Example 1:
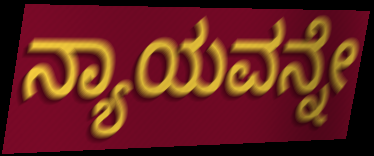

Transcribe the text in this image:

ನ್ಯಾಯವನ್ನೇ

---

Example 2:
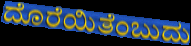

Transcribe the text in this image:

ದೊರೆಯಿತೆಂಬುದು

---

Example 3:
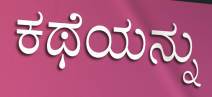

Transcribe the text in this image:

ಕಥೆಯನ್ನು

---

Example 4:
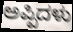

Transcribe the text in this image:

ಅಪ್ಪಿದಳು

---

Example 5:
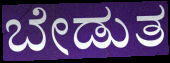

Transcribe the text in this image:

ಬೇಡುತ